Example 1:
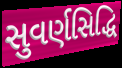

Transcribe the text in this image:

સુવર્ણસિદ્ધિ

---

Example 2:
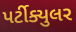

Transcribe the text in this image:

પર્ટીક્યુલર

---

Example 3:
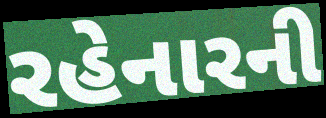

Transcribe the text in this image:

રહેનારની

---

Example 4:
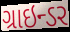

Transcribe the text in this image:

ગ્રાઇન્ડર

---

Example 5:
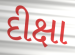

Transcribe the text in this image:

દીક્ષા